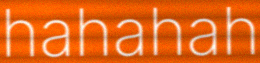
hahahah